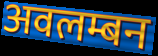
अवलम्बन